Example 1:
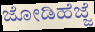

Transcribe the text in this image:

ಜೋಡಿಹೆಜ್ಜೆ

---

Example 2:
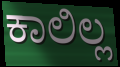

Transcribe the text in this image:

ಕಾಲಿಲ್ಲ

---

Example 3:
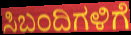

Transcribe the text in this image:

ಸಿಬಂದಿಗಳಿಗೆ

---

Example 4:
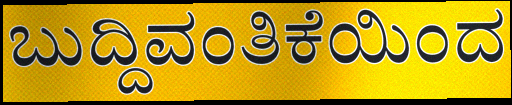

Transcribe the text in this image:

ಬುದ್ದಿವಂತಿಕೆಯಿಂದ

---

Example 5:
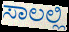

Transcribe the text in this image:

ಸಾಲಲ್ಲಿ